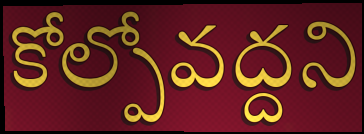
కోల్పోవద్దని